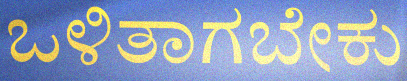
ಒಳಿತಾಗಬೇಕು